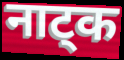
नाट्क